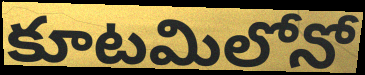
కూటమిలోనో